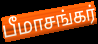
பீமாசங்கர்